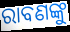
ରାବଣଙ୍କୁ